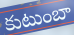
కుటుంబా